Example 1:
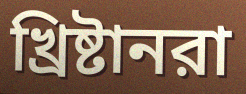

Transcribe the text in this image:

খ্রিষ্টানরা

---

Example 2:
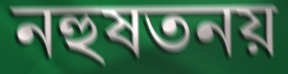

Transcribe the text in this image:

নহুষতনয়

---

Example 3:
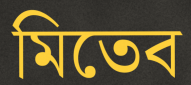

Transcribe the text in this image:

মিতেব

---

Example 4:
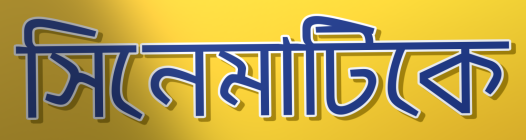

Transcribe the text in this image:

সিনেমাটিকে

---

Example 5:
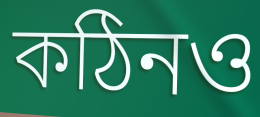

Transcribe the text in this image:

কঠিনও